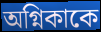
অগ্নিকাকে